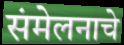
संमेलनाचे